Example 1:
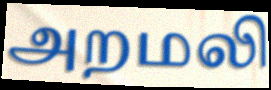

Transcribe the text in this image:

அறமலி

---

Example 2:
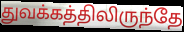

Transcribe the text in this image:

துவக்கத்திலிருந்தே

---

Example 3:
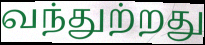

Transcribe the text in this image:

வந்துற்றது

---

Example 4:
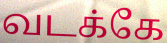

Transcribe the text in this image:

வடக்கே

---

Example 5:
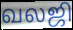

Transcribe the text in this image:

வலஜி